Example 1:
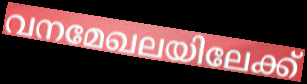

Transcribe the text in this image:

വനമേഖലയിലേക്ക്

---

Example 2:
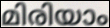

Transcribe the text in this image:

മിരിയാം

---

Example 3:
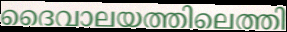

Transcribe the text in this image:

ദൈവാലയത്തിലെത്തി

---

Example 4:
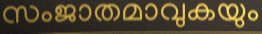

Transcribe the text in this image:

സംജാതമാവുകയും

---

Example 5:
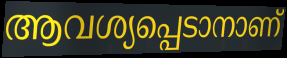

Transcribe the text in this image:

ആവശ്യപ്പെടാനാണ്